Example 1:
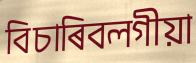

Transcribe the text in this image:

বিচাৰিবলগীয়া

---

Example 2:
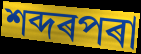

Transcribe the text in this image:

শব্দৰপৰা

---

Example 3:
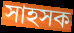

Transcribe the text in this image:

সাহসক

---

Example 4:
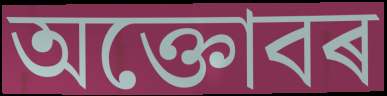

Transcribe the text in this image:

অক্তোবৰ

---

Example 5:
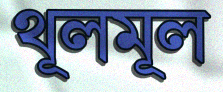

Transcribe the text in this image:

থূলমূল